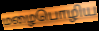
மழைபொழிய